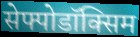
सेफ्पोडॉक्सिम